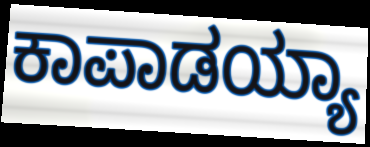
ಕಾಪಾಡಯ್ಯಾ